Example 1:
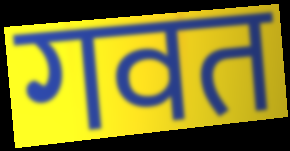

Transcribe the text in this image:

गवत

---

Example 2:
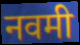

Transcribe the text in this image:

नवमी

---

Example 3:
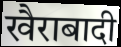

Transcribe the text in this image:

खैराबादी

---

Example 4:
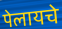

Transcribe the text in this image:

पेलायचे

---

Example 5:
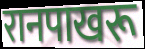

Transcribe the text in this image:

रानपाखरू